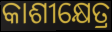
କାଶୀକ୍ଷେତ୍ର